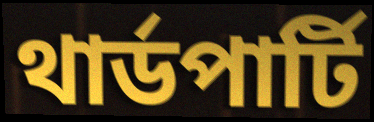
থার্ডপার্টি